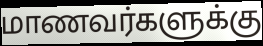
மாணவர்களுக்கு